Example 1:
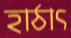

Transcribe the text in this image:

হাঠাৎ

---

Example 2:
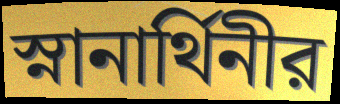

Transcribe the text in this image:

স্নানার্থিনীর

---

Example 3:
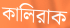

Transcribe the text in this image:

কালিরাক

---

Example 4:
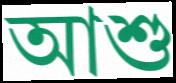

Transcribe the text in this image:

আশু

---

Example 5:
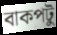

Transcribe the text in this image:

বাকপটু